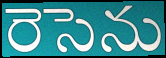
రెసెను